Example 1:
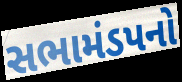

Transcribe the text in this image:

સભામંડપનો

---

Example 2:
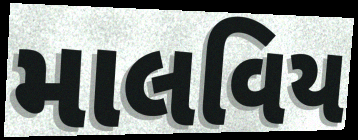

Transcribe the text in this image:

માલવિય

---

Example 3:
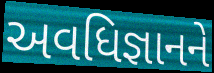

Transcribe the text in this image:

અવધિજ્ઞાનને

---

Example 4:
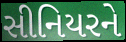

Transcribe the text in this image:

સીનિયરને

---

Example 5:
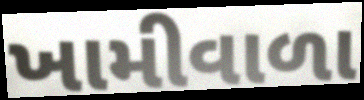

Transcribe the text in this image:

ખામીવાળા